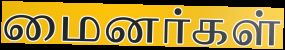
மைனர்கள்